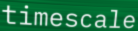
timescale